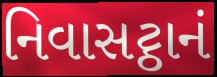
નિવાસટ્ઠાનં